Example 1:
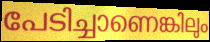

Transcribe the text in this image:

പേടിച്ചാണെങ്കിലും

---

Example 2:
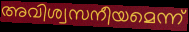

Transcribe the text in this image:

അവിശ്വസനീയമെന്ന്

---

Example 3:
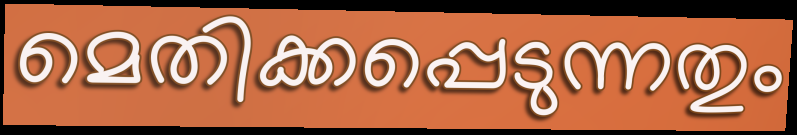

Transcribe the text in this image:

മെതിക്കപ്പെടുന്നതും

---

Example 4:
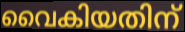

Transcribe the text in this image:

വൈകിയതിന്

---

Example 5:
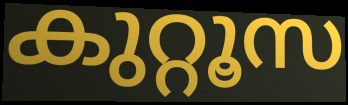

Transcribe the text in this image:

കുറ്റൂസ